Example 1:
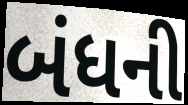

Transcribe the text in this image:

બંધની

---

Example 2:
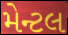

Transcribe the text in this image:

મેન્ટલ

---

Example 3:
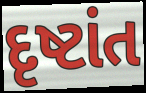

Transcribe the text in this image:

દૃષ્ટાંત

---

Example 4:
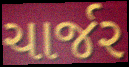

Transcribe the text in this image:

ચાર્જર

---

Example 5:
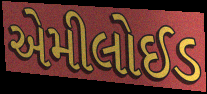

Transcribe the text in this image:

એમીલોઈડ